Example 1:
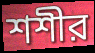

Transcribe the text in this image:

শশীর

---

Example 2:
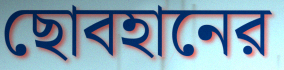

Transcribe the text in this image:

ছোবহানের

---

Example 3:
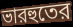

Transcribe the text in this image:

ভারহুতের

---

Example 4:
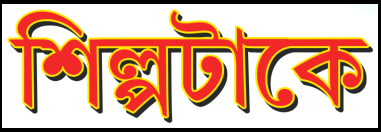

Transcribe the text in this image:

শিল্পটাকে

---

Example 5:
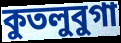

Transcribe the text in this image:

কুতলুবুগা